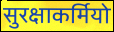
सुरक्षाकर्मियो